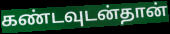
கண்டவுடன்தான்